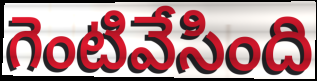
గెంటివేసింది